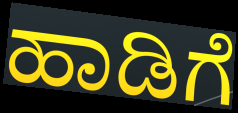
ಹಾಡಿಗೆ